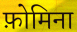
फ़ोमिना